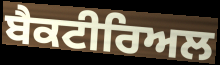
ਬੈਕਟੀਰਿਅਲ